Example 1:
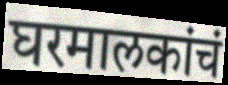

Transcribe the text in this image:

घरमालकांचं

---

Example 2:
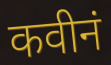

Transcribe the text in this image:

कवीनं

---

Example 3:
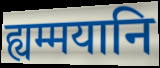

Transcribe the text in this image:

ह्यम्मयानि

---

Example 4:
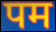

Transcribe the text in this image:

पम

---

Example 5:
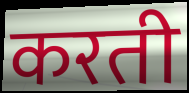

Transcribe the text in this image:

करती